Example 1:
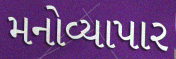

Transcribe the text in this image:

મનોવ્યાપાર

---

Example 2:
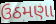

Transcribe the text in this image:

ઉઠમણા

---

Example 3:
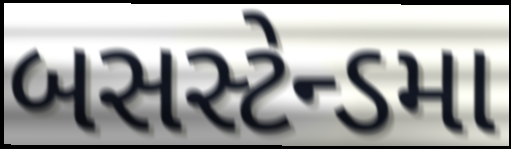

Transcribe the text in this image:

બસસ્ટેન્ડમા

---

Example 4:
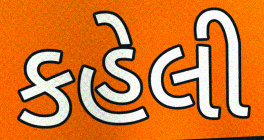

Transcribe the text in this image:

કહેલી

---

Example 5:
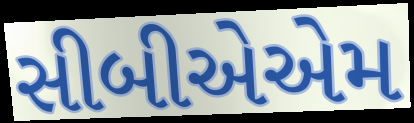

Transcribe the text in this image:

સીબીએએમ